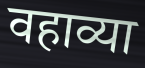
वहाव्या